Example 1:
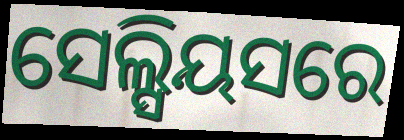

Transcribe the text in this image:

ସେଲ୍ସିୟସରେ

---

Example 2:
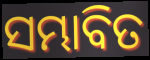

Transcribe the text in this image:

ସମ୍ଭାବିତ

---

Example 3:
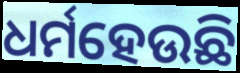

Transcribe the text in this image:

ଧର୍ମହେଉଛି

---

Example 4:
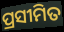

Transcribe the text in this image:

ପ୍ରସୀମିତ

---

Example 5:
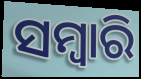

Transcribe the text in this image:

ସମ୍ବାରି